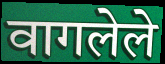
वागलेले